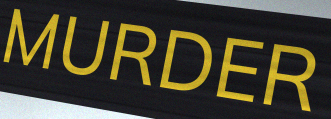
MURDER